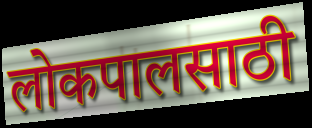
लोकपालसाठी